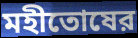
মহীতোষের